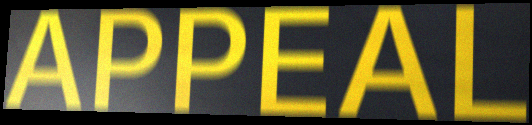
APPEAL